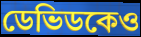
ডেভিডকেও